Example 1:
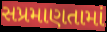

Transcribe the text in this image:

સપ્રમાણતામાં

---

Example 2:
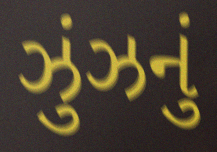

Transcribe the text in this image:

ઝુંઝનું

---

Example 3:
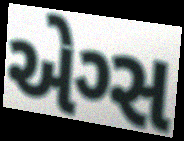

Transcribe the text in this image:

એગ્સ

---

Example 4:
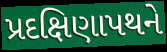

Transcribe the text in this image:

પ્રદક્ષિણાપથને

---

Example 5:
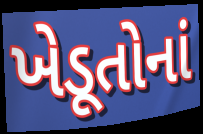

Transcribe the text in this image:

ખેડૂતોનાં